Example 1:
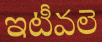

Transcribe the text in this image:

ఇటీవలె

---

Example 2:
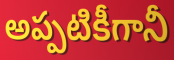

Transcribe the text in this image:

అప్పటికీగానీ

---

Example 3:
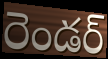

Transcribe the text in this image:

రెండర్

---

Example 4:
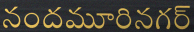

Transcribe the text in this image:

నందమూరినగర్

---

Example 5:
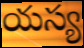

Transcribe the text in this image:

యస్య